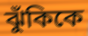
ঝুঁকিকে